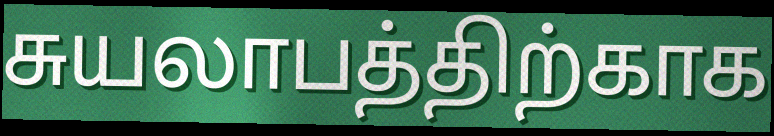
சுயலாபத்திற்காக